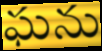
ఘను